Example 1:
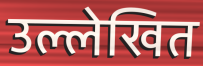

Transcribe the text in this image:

उल्लेखित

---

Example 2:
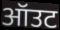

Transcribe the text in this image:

ऑउट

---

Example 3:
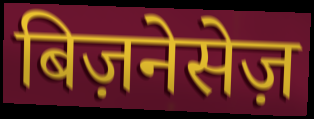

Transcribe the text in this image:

बिज़नेसेज़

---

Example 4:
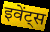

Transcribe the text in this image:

इवेंट्स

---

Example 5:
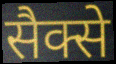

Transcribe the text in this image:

सैक्से